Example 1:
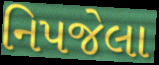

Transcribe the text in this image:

નિપજેલા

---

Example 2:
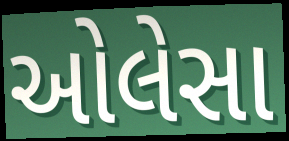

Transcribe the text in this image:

ઓલેસા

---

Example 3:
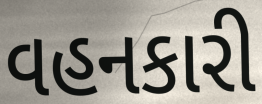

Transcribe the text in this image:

વહનકારી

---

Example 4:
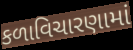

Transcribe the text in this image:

કળાવિચારણામાં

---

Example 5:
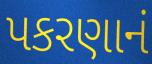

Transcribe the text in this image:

પકરણાનં